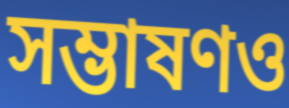
সম্ভাষণও